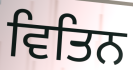
ਵਿਤਿਨ